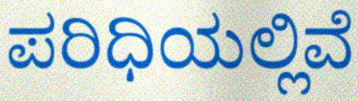
ಪರಿಧಿಯಲ್ಲಿವೆ